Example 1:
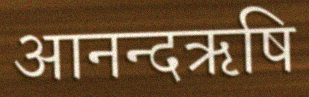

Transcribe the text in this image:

आनन्दऋषि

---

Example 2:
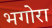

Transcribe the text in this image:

भगोरा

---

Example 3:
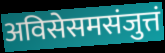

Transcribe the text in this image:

अविसेसमसंजुत्तं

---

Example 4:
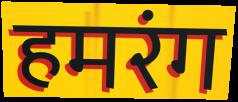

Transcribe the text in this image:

हमरंग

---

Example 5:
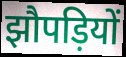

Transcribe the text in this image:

झौपड़ियों